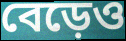
বেড়েও